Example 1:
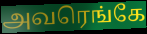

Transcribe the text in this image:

அவரெங்கே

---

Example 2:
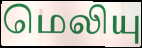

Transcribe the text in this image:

மெலியு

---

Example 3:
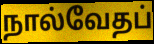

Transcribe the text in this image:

நால்வேதப்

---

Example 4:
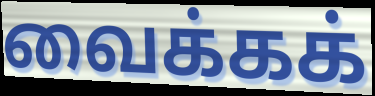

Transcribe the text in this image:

வைக்கக்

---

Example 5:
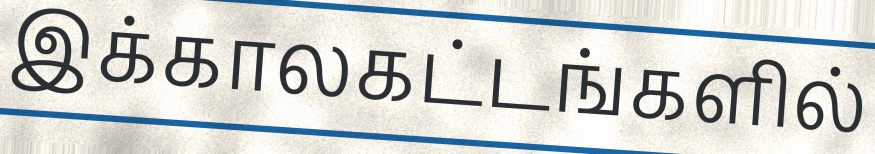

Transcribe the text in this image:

இக்காலகட்டங்களில்